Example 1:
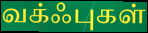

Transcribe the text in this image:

வக்ஃபுகள்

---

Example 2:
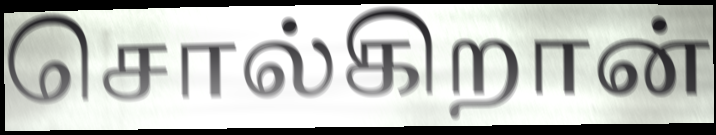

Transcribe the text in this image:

சொல்கிறான்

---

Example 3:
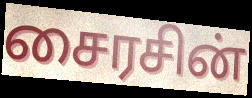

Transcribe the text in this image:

சைரசின்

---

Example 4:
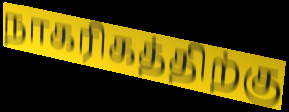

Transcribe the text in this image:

நாகரிகத்திற்கு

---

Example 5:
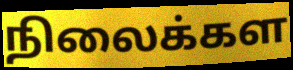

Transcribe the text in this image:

நிலைக்கள